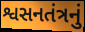
શ્વસનતંત્રનું